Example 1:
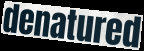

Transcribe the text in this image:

denatured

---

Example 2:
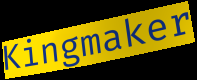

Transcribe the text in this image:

Kingmaker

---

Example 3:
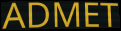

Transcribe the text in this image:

ADMET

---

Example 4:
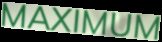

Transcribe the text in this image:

MAXIMUM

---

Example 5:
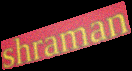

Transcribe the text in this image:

shraman